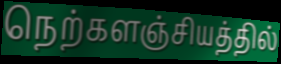
நெற்களஞ்சியத்தில்